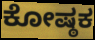
ಕೋಷ್ಠಕ